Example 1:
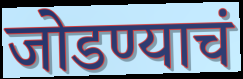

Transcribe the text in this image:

जोडण्याचं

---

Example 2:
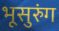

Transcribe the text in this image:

भूसुरुंग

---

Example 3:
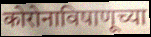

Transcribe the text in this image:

कोरोनाविषाणूच्या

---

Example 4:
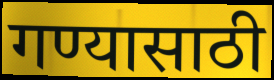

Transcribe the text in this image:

गण्यासाठी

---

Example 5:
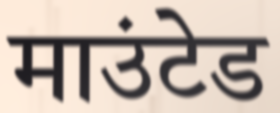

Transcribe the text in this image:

माउंटेड